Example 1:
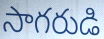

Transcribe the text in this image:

సాగరుడి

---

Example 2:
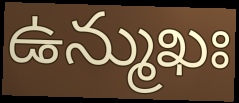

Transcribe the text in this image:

ఉన్ముఖః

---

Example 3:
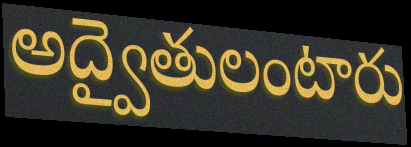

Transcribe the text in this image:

అద్వైతులంటారు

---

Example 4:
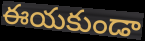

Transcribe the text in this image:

ఈయకుండా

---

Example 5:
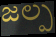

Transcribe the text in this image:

జల్ప